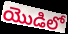
యొడిలో